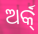
ଅର୍କ୍